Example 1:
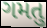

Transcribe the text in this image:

ગમતુ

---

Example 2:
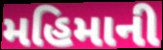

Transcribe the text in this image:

મહિમાની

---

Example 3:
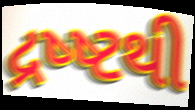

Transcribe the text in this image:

દ્રષ્ષ્ટથી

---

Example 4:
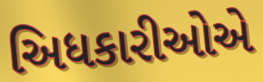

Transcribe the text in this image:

અિધકારીઓએ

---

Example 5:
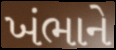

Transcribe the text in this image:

ખંભાને